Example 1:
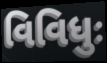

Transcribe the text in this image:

વિવિધુઃ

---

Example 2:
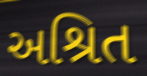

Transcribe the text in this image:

અશ્રિત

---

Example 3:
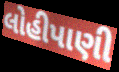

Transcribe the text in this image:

લોહીપાણી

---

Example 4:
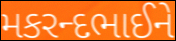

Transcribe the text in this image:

મકરન્દભાઈને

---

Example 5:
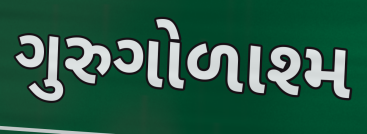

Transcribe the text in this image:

ગુરુગોળાશ્મ